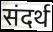
संदर्थ